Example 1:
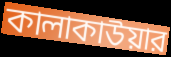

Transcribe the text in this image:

কালাকাউয়ার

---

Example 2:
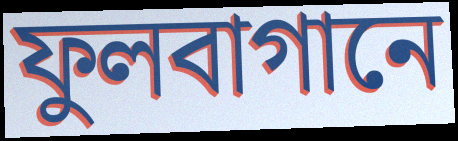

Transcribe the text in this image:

ফুলবাগানে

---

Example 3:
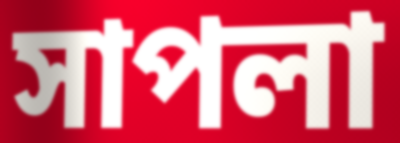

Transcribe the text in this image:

সাপলা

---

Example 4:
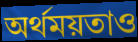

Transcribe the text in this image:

অর্থময়তাও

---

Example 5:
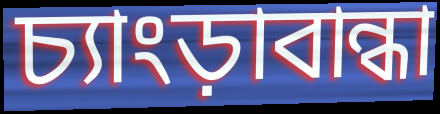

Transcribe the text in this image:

চ্যাংড়াবান্ধা